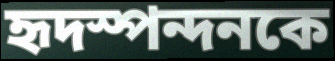
হৃদস্পন্দনকে